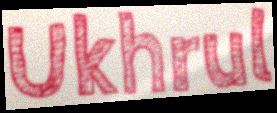
Ukhrul